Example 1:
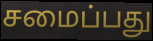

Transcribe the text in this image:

சமைப்பது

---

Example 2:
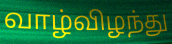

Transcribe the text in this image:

வாழ்விழந்து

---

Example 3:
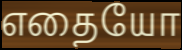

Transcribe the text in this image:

எதையோ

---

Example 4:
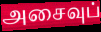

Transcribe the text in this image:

அசைவுப்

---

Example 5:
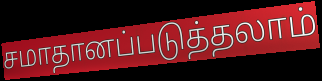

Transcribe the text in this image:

சமாதானப்படுத்தலாம்